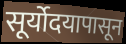
सूर्योदयापासून